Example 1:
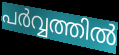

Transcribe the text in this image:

പർവ്വത്തിൽ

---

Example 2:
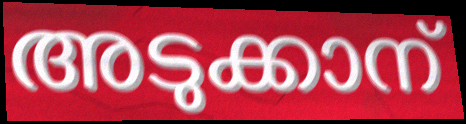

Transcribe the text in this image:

അടുക്കാന്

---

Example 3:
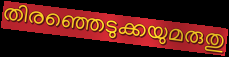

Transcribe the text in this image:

തിരഞ്ഞെടുക്കയുമരുതു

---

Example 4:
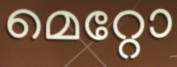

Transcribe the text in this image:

മെറ്റോ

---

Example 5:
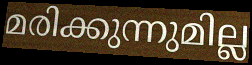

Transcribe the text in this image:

മരിക്കുന്നുമില്ല